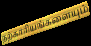
நற்காரியங்களையும்